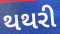
થથરી